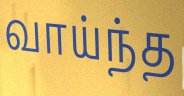
வாய்ந்த